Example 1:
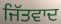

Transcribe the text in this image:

ਜਿੱਤਵਾਦ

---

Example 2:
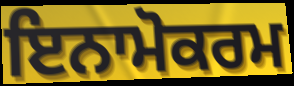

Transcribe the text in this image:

ਇਨਾਮੋਕਰਮ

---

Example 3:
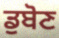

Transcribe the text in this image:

ਡੁਬੋਣ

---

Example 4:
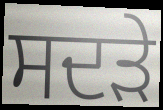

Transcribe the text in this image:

ਸਦੜੇ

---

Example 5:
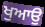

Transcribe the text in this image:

ਖੁਆਉ